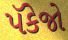
પૅકેજો